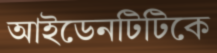
আইডেনটিটিকে